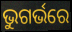
ଭୁଗର୍ଭରେ